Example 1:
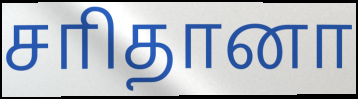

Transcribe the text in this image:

சரிதானா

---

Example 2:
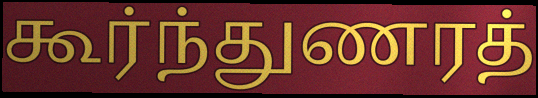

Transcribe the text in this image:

கூர்ந்துணரத்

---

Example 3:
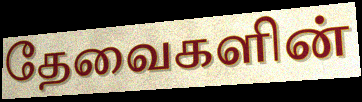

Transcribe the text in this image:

தேவைகளின்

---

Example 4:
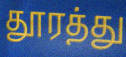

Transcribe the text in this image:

தூரத்து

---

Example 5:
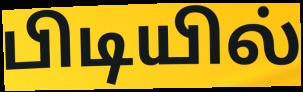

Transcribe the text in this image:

பிடியில்